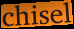
chisel